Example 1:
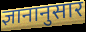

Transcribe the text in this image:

ज्ञानानुसार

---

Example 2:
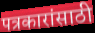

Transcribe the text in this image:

पत्रकारांसाठी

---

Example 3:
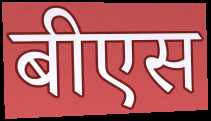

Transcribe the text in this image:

बीएस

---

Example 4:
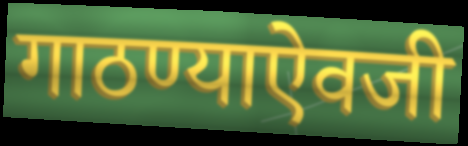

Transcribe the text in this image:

गाठण्याऐवजी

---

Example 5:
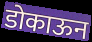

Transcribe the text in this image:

डोकाऊन